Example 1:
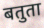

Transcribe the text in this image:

बतुता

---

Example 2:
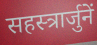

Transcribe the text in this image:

सहस्त्रार्जुनें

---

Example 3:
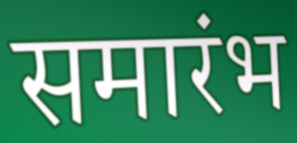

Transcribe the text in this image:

समारंभ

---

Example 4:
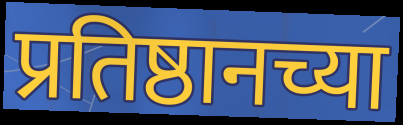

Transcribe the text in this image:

प्रतिष्ठानच्या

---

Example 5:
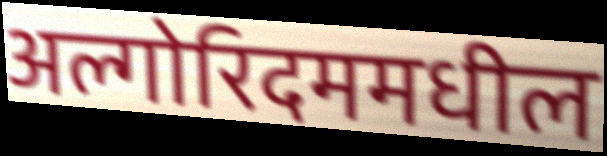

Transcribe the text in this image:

अल्गोरिदममधील